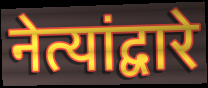
नेत्यांद्वारे